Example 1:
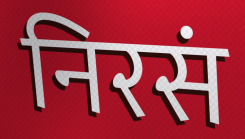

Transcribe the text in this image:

निरसं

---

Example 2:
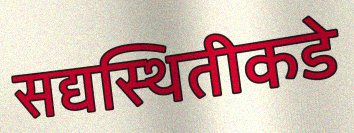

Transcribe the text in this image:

सद्यस्थितीकडे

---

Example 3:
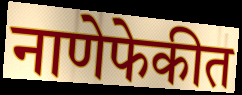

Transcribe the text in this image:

नाणेफेकीत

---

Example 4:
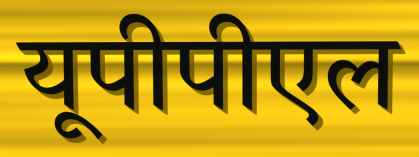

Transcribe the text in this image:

यूपीपीएल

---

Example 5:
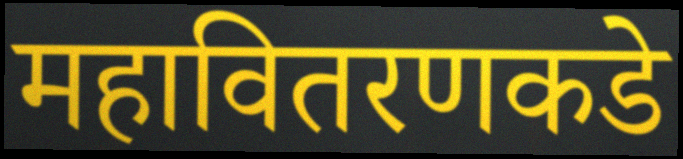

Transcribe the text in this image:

महावितरणकडे